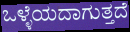
ಒಳ್ಳೆಯದಾಗುತ್ತದೆ